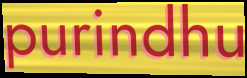
purindhu